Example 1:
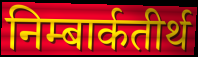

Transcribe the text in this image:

निम्बार्कतीर्थ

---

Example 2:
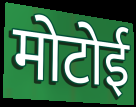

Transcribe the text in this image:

मोटोई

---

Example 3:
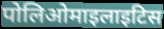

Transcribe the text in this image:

पोलिओमाइलाइटिस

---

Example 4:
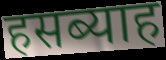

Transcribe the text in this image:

हसब्याह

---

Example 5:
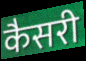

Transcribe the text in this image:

कैसरी